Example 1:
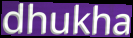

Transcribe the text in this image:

dhukha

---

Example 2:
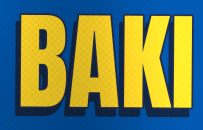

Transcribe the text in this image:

BAKI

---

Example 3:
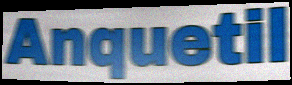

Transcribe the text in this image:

Anquetil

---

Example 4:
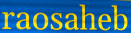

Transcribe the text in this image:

raosaheb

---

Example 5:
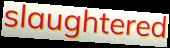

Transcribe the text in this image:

slaughtered